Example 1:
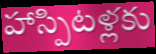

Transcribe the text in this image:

హాస్పిటళ్లకు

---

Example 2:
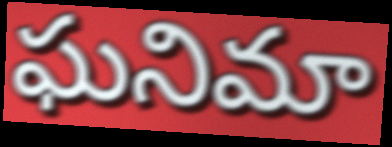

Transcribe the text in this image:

ఘనిమా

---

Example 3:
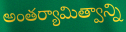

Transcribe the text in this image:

అంతర్యామిత్వాన్ని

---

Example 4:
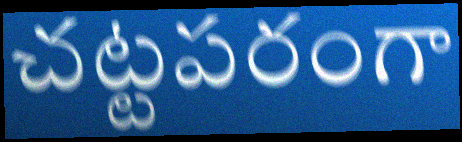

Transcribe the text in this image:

చట్టపరంగా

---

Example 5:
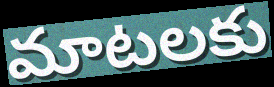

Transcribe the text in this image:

మాటలకు